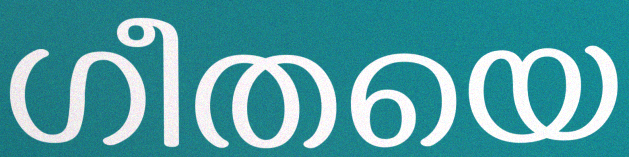
ഗീതയെ